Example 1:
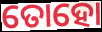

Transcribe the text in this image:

ତୋହୋ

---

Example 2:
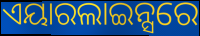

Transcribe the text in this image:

ଏୟାରଲାଇନ୍ସରେ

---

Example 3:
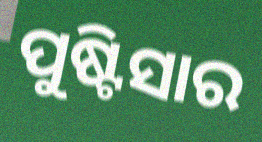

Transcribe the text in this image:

ପୁଷ୍ଟିସାର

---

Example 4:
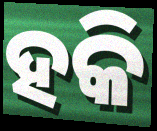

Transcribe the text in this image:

ହକି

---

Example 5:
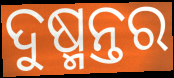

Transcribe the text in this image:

ଦୁଷ୍ମନ୍ତର